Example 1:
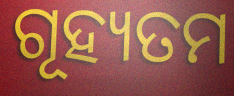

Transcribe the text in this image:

ଗୂହ୍ୟତମ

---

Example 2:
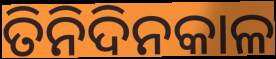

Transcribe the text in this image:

ତିନିଦିନକାଳ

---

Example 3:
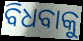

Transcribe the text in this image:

ବିଧବାକୁ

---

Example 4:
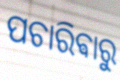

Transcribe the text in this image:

ପଚାରିଵାରୁ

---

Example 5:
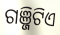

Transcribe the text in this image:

ଗଞ୍ଜିଟିଏ